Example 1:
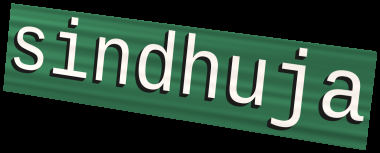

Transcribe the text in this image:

sindhuja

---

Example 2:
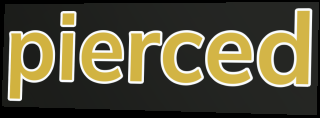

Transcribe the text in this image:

pierced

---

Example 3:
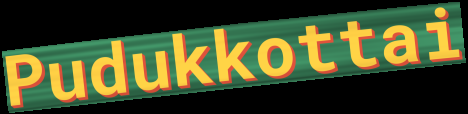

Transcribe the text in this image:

Pudukkottai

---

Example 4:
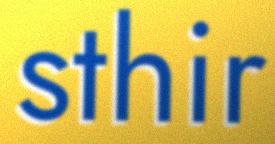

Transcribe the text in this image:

sthir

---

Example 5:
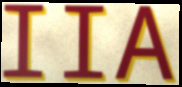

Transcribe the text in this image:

IIA